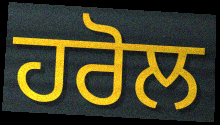
ਹਰੋਲ